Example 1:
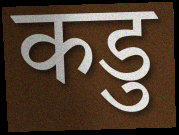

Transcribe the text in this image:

कडु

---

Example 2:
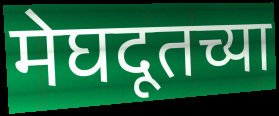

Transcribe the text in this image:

मेघदूतच्या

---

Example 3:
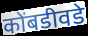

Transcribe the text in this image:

कोंबडीवडे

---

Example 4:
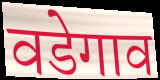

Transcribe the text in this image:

वडेगाव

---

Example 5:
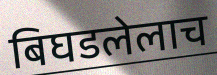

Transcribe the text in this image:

बिघडलेलाच